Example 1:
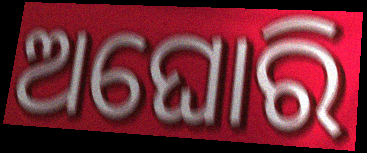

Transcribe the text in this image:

ଅଘୋରି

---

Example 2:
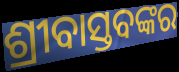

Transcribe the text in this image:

ଶ୍ରୀବାସ୍ତବଙ୍କର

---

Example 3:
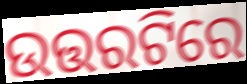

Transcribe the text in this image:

ଉତ୍ତରଟିରେ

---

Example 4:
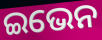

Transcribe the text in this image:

ଇଭେନ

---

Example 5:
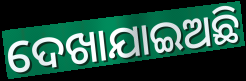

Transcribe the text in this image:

ଦେଖାଯାଇଅଛି